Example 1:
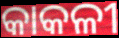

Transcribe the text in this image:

କାକଳୀ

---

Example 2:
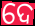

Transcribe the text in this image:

ଦେ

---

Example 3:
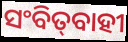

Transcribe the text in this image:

ସଂବିତ୍‌ବାହୀ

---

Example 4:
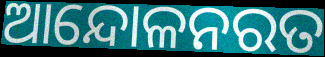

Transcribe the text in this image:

ଆନ୍ଦୋଳନରତ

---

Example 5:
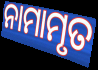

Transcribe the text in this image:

ନାମାମୃତ